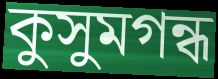
কুসুমগন্ধ